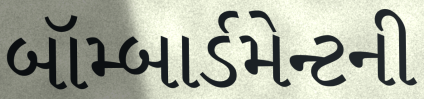
બૉમ્બાર્ડમેન્ટની